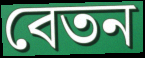
বেতন